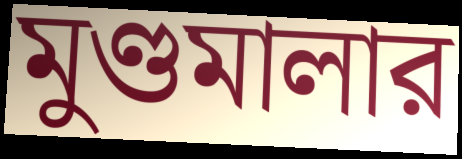
মুণ্ডমালার